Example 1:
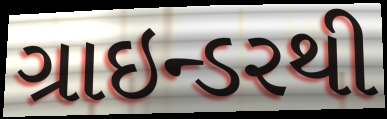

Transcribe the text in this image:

ગ્રાઇન્ડરથી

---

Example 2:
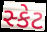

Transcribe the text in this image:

સ્કેટ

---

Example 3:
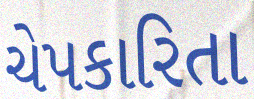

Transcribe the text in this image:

ચેપકારિતા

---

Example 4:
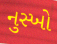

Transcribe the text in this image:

નુસ્ખો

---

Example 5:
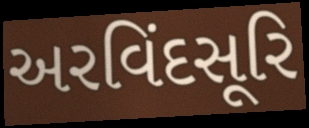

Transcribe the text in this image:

અરવિંદસૂરિ